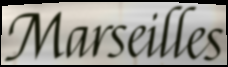
Marseilles